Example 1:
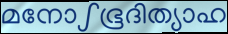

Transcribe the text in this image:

മനോഽഭൂദിത്യാഹ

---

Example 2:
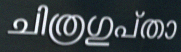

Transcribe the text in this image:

ചിത്രഗുപ്‌താ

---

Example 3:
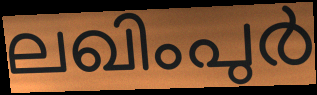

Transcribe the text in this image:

ലഖിംപുർ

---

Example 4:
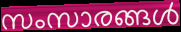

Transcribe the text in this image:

സംസാരങ്ങൾ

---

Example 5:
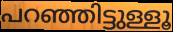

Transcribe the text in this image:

പറഞ്ഞിട്ടുള്ളൂ